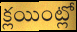
క్లయింట్లో